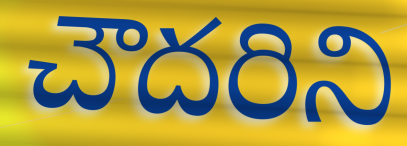
చౌదరిని